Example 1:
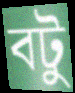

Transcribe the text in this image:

বটু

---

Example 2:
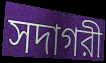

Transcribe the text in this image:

সদাগরী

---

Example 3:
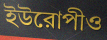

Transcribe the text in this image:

ইউরোপীও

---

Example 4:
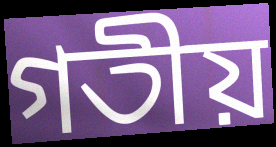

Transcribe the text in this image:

গতীয়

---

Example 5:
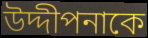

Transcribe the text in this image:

উদ্দীপনাকে